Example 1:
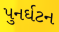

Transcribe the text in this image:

પુનર્ઘટન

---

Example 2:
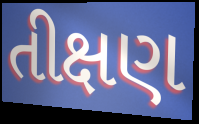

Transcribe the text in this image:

તીક્ષણ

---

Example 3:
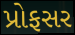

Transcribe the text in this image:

પ્રોફસર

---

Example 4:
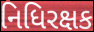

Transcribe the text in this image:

નિધિરક્ષક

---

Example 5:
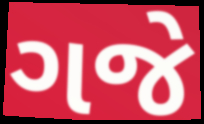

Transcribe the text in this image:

ગજે